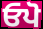
ਓਪੋ